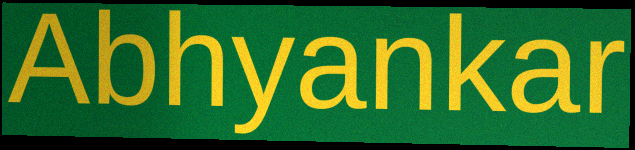
Abhyankar